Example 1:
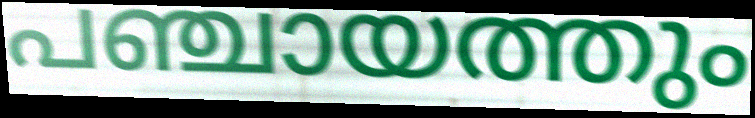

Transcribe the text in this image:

പഞ്ചായത്തും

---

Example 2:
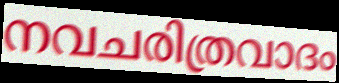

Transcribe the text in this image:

നവചരിത്രവാദം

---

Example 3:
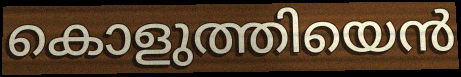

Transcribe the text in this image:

കൊളുത്തിയെൻ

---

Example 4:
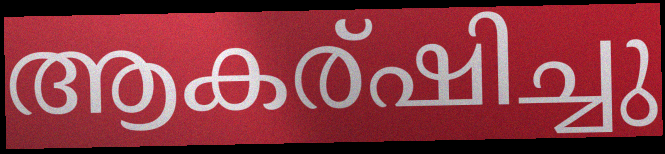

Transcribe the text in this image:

ആകര്ഷിച്ചു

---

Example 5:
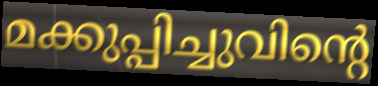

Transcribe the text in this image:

മക്കുപ്പിച്ചുവിന്റെ